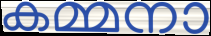
കമ്മനാ